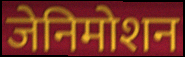
जेनिमोशन